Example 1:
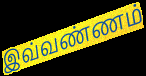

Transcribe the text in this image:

இவ்வண்ணம்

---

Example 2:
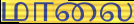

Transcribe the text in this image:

மாலை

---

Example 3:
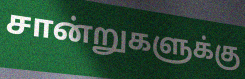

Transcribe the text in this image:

சான்றுகளுக்கு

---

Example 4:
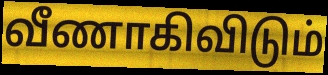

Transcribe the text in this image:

வீணாகிவிடும்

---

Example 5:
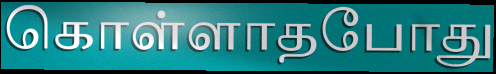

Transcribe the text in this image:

கொள்ளாதபோது